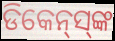
ଡିକେନ୍‌ସ୍‌ଙ୍କ